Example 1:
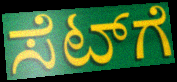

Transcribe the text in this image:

ಸೆಟ್‌ಗೆ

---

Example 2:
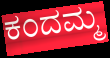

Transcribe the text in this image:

ಕಂದಮ್ಮ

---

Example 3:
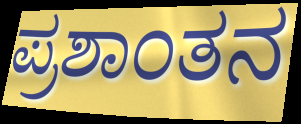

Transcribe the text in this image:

ಪ್ರಶಾಂತನ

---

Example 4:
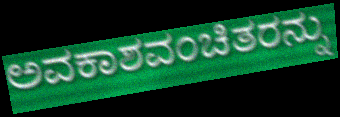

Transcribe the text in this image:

ಅವಕಾಶವಂಚಿತರನ್ನು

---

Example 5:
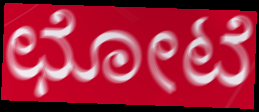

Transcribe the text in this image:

ಛೋಟೆ